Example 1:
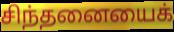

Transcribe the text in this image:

சிந்தனையைக்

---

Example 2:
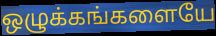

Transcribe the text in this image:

ஒழுக்கங்களையே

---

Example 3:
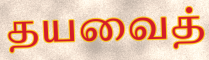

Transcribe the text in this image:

தயவைத்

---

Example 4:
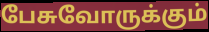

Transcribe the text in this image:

பேசுவோருக்கும்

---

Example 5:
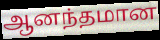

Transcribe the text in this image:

ஆனந்தமான